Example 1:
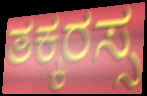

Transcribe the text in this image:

ತಕ್ಕರಸ್ಸ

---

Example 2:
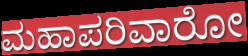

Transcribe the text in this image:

ಮಹಾಪರಿವಾರೋ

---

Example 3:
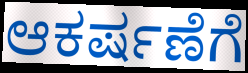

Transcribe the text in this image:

ಆಕರ್ಷಣೆಗೆ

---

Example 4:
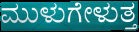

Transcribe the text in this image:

ಮುಳುಗೇಳುತ್ತ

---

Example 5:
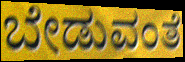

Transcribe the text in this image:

ಬೇಡುವಂತೆ